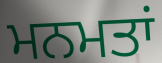
ਮਨਮਤਾਂ